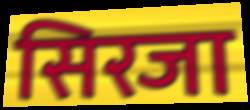
सिरजा